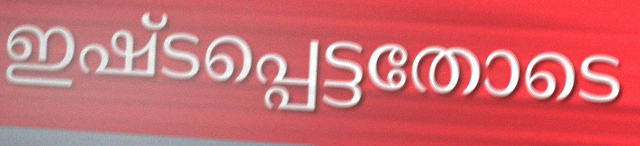
ഇഷ്ടപ്പെട്ടതോടെ